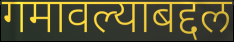
गमावल्याबद्दल